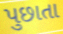
પુછાતા